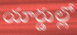
యార్డుల్లో